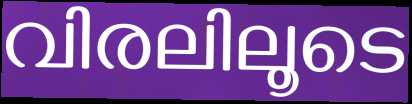
വിരലിലൂടെ